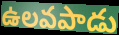
ఉలవపాడు